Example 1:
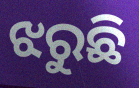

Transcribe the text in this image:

ଝରୁଛି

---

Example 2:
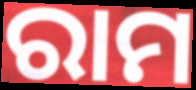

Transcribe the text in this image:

ରାମ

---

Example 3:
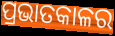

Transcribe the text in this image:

ପ୍ରଭାତକାଳର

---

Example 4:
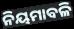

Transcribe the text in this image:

ନିୟମାବଳି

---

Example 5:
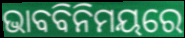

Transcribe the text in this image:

ଭାବବିନିମୟରେ